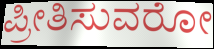
ಪ್ರೀತಿಸುವರೋ